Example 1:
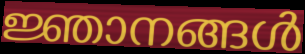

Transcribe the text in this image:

ജ്ഞാനങ്ങൾ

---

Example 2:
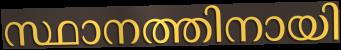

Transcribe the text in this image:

സ്ഥാനത്തിനായി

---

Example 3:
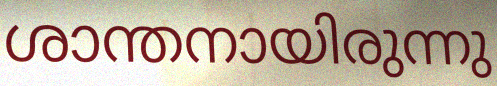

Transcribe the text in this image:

ശാന്തനായിരുന്നു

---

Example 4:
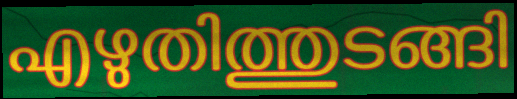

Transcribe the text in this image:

എഴുതിത്തുടങ്ങി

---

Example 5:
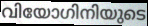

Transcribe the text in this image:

വിയോഗിനിയുടെ